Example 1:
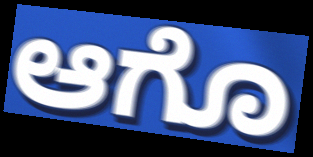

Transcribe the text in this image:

ಆಗೊ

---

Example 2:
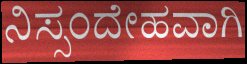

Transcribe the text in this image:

ನಿಸ್ಸಂದೇಹವಾಗಿ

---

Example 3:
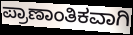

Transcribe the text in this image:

ಪ್ರಾಣಾಂತಿಕವಾಗಿ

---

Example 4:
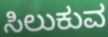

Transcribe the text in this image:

ಸಿಲುಕುವ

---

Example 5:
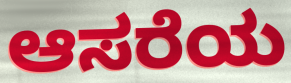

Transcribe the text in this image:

ಆಸರೆಯ